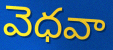
వెధవా